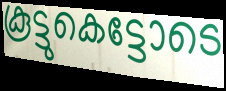
കൂട്ടുകെട്ടോടെ